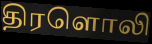
திரளொலி